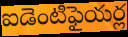
ఐడెంటిఫైయర్ల